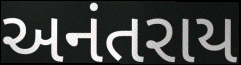
અનંતરાય